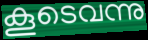
കൂടെവന്നു